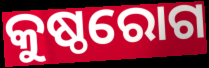
କୁଷ୍ଠରୋଗ